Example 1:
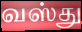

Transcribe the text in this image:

வஸ்து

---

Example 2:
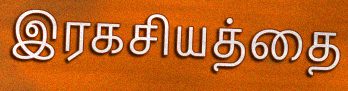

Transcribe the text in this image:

இரகசியத்தை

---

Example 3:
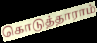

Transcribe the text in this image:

கொடுத்தாராம்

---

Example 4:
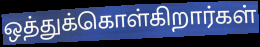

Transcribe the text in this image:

ஒத்துக்கொள்கிறார்கள்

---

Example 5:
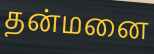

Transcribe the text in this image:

தன்மனை